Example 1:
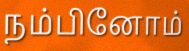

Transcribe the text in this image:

நம்பினோம்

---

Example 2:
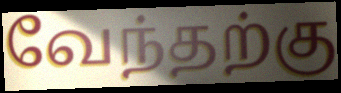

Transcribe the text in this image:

வேந்தற்கு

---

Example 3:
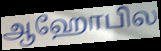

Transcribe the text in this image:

ஆஹோபில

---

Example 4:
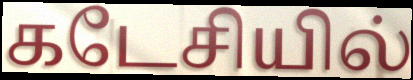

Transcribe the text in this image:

கடேசியில்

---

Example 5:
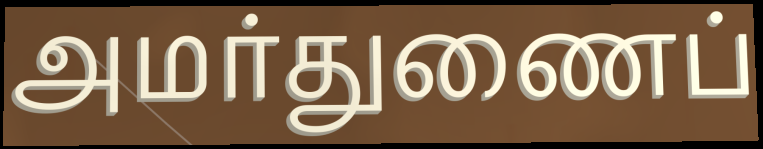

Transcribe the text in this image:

அமர்துணைப்